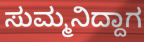
ಸುಮ್ಮನಿದ್ದಾಗ